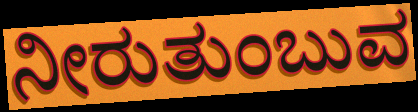
ನೀರುತುಂಬುವ